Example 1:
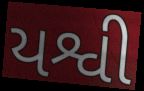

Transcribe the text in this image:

યશ્વી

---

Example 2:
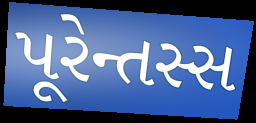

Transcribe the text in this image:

પૂરેન્તસ્સ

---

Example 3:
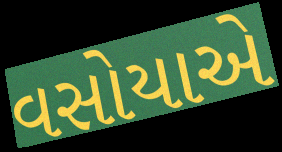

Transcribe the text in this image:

વસોયાએ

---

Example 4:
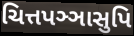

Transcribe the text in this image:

ચિત્તપઞ્ઞાસુપિ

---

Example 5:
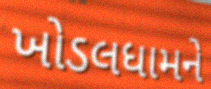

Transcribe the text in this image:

ખોડલધામને